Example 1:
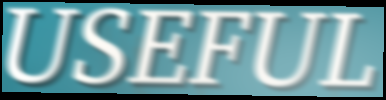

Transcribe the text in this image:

USEFUL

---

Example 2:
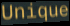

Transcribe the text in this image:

Unique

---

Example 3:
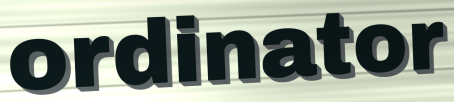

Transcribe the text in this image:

ordinator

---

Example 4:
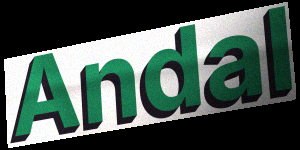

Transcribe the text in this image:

Andal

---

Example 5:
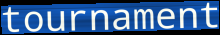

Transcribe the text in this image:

tournament